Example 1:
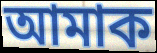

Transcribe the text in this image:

আমাক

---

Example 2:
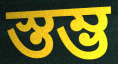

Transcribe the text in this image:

স্তম্ভ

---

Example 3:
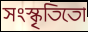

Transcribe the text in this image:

সংস্কৃতিতো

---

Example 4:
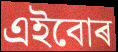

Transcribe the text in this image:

এইবোৰ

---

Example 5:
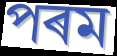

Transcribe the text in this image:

পৰম